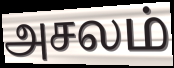
அசலம்